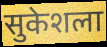
सुकेशला